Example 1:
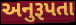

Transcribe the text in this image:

અનુરૂપતા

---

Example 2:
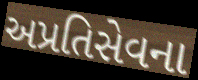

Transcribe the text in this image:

અપ્રતિસેવના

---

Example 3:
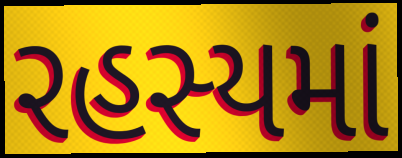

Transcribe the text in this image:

રહસ્યમાં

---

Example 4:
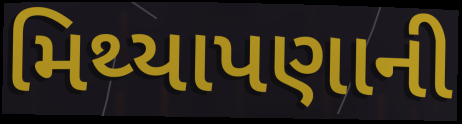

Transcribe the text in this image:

મિથ્યાપણાની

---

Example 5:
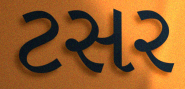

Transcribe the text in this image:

ટસર